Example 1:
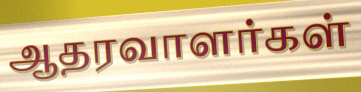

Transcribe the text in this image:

ஆதரவாளர்கள்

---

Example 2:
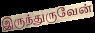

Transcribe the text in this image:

இருந்துருவேன்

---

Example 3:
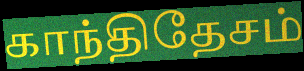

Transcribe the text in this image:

காந்திதேசம்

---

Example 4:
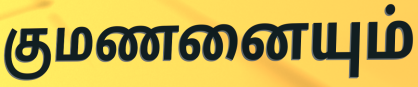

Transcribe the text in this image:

குமணனையும்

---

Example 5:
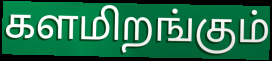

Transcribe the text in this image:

களமிறங்கும்